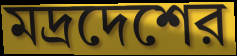
মদ্রদেশের